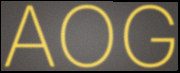
AOG